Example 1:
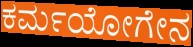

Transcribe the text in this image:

ಕರ್ಮಯೋಗೇನ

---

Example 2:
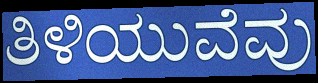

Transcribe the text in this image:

ತಿಳಿಯುವೆವು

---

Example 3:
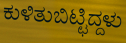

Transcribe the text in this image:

ಕುಳಿತುಬಿಟ್ಟಿದ್ದಳು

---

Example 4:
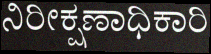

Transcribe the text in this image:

ನಿರೀಕ್ಷಣಾಧಿಕಾರಿ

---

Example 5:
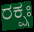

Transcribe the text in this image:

ರಕ್ಷಃ